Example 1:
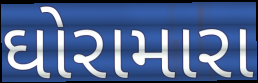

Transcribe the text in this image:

ઘોરામારા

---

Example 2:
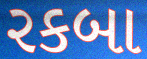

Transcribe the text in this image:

રકબા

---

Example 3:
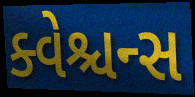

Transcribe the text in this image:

ક્વેશ્ચન્સ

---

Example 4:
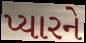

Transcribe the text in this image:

પ્યારને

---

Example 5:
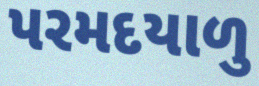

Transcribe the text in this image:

પરમદયાળુ